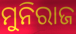
ମୁନିରାଜ